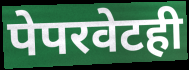
पेपरवेटही